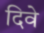
दिवे